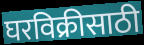
घरविक्रीसाठी